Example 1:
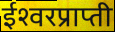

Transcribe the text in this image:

ईश्वरप्राप्ती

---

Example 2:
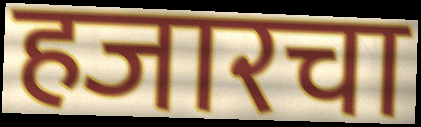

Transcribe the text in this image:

हजारचा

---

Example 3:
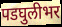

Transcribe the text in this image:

पडघुलीभर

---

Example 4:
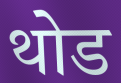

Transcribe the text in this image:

थोड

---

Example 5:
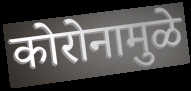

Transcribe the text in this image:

कोरोनामुळे